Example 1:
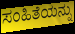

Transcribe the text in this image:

ಸಂಹಿತೆಯನ್ನು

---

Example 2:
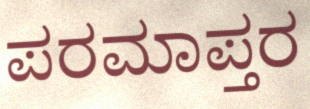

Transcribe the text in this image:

ಪರಮಾಪ್ತರ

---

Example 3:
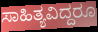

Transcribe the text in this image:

ಸಾಹಿತ್ಯವಿದ್ದರೂ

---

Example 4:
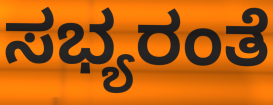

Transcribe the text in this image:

ಸಭ್ಯರಂತೆ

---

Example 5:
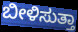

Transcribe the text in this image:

ಬೀಳಿಸುತ್ತಾ